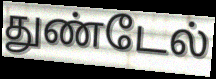
துண்டேல்